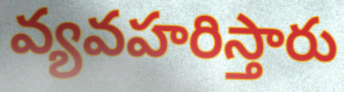
వ్యవహరిస్తారు